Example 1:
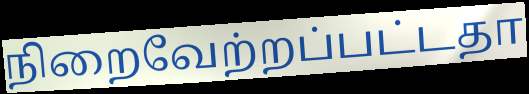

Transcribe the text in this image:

நிறைவேற்றப்பட்டதா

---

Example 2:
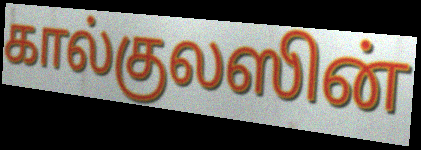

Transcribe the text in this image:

கால்குலஸின்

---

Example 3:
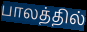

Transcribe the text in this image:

பாலத்தில்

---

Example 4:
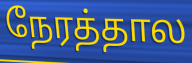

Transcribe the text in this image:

நேரத்தால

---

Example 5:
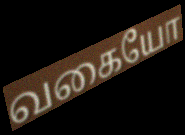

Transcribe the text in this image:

வகையோ